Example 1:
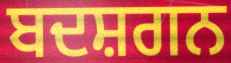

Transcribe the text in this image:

ਬਦਸ਼ਗਨ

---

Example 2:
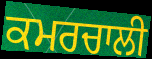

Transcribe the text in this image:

ਕਮਰਚਾਲੀ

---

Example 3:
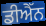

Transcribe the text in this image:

ਡੀਐੱਨ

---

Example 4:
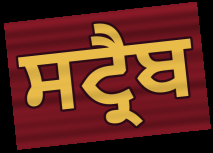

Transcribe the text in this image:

ਸਟ੍ਰੈਬ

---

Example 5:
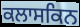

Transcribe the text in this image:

ਕਲਾਸਕਿਨ